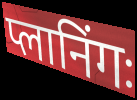
प्लानिंगः